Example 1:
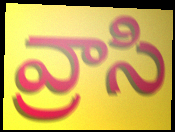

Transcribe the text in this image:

వ్రాసి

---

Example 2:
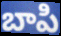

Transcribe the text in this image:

బాపి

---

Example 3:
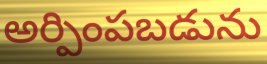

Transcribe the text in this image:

అర్పింపబడును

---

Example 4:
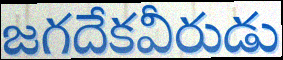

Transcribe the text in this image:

జగదేకవీరుడు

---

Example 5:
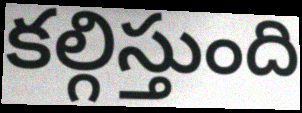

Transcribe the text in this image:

కల్గిస్తుంది